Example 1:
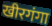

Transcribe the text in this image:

खीरगंगा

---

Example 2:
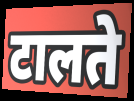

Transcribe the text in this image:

टालते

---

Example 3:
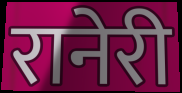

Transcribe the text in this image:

रानेरी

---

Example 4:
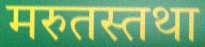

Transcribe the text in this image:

मरुतस्तथा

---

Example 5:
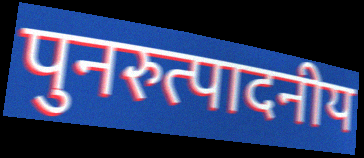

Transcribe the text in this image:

पुनरुत्पादनीय